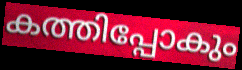
കത്തിപ്പോകും